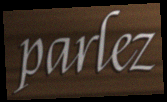
parlez